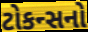
ટોકન્સનો